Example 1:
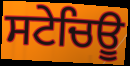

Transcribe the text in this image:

ਸਟੇਚਿਊ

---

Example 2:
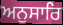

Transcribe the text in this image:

ਅਨੁਸਾਰਿ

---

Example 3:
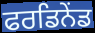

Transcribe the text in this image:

ਫਰਡਿਨੇਂਡ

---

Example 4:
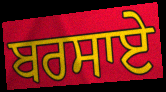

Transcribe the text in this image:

ਬਰਸਾਏ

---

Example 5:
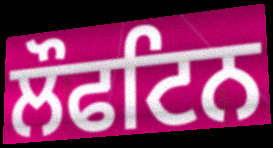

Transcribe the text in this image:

ਲੌਫਟਿਨ